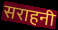
सराहनी